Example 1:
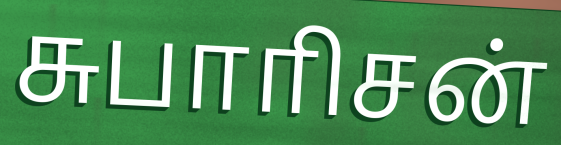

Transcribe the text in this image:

சுபாரிசன்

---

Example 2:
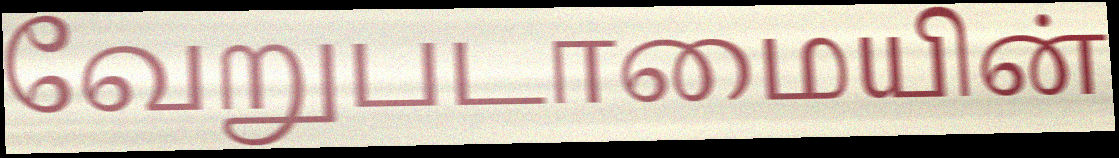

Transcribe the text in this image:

வேறுபடாமையின்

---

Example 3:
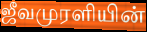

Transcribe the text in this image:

ஜீவமுரளியின்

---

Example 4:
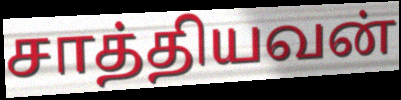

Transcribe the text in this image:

சாத்தியவன்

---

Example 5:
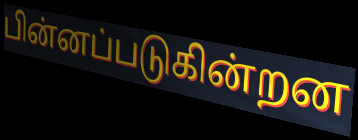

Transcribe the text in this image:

பின்னப்படுகின்றன